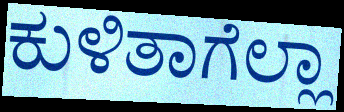
ಕುಳಿತಾಗೆಲ್ಲಾ